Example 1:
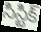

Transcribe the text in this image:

సిస్టిక్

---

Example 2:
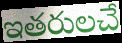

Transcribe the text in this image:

ఇతరులచే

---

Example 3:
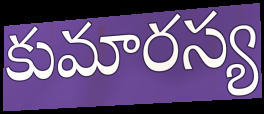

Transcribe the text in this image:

కుమారస్య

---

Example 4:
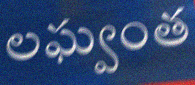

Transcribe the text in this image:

లఘ్వంత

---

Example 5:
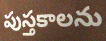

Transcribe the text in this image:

పుస్తకాలను